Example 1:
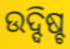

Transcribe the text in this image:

ଉଦ୍ଦିଷ୍ଚ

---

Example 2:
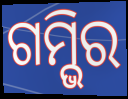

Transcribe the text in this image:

ଗମ୍ଭିର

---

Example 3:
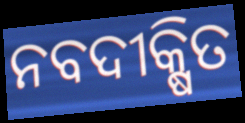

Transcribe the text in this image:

ନବଦୀକ୍ଷିତ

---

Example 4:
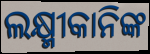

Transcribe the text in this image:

ଲକ୍ଷ୍ମୀକାନିଙ୍କ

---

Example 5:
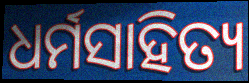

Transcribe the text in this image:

ଧର୍ମସାହିତ୍ୟ